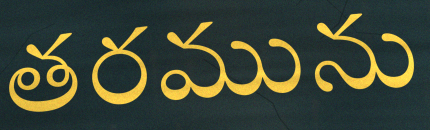
తరమును